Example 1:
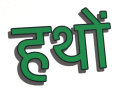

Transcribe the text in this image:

हथों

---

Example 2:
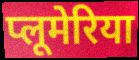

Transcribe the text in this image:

प्लूमेरिया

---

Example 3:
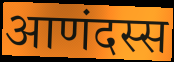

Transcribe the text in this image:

आणंदस्स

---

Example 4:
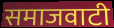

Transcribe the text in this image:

समाजवाटी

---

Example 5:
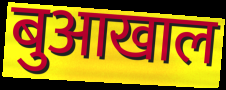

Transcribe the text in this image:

बुआखाल